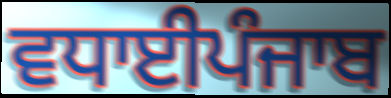
ਵਧਾਈਪੰਜਾਬ